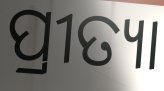
ପ୍ରୀତ୍ୟା